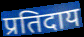
प्रतिदाय